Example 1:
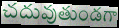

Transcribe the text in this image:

చదువుతుండగా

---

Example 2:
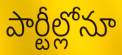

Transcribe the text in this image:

పార్టీల్లోనూ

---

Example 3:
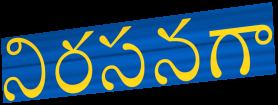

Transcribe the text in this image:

నిరసనగా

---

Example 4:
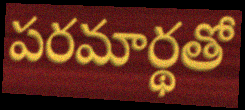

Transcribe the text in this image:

పరమార్థతో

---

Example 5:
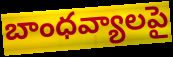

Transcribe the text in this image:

బాంధవ్యాలపై